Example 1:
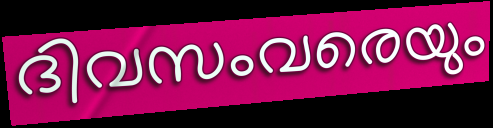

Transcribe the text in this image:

ദിവസംവരെയും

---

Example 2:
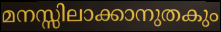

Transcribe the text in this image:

മനസ്സിലാക്കാനുതകും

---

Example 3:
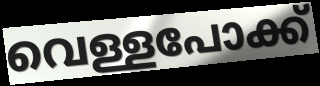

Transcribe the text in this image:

വെള്ളപോക്ക്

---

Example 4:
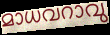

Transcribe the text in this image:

മാധവറാവു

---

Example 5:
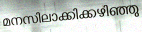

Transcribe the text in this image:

മനസിലാക്കിക്കഴിഞ്ഞു